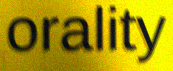
orality